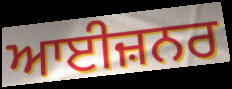
ਆਈਜ਼ਨਰ